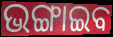
ଭଙ୍ଗାଇବ